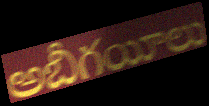
అబీగయీలు